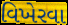
વિખેરવા